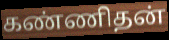
கண்ணிதன்